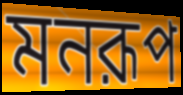
মনরূপ